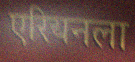
एरियनला